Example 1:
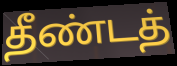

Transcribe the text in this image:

தீண்டத்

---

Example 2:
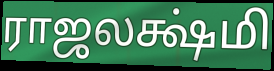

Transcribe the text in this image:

ராஜலக்ஷ்மி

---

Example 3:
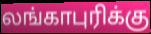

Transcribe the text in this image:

லங்காபுரிக்கு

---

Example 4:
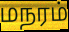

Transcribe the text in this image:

மநரம்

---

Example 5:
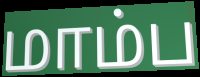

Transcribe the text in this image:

மாம்ப